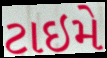
ટાઇમે